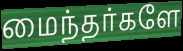
மைந்தர்களே